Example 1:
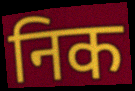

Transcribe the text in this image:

निक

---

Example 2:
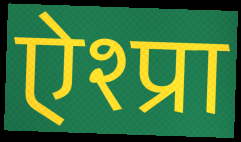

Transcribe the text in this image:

ऐश्प्रा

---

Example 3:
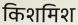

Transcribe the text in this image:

किशमिश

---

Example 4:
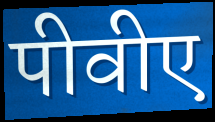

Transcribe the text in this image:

पीवीए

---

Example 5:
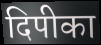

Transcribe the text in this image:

दिपीका